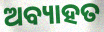
ଅବ୍ୟାହତ